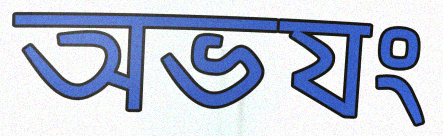
অভযং